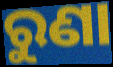
ରୁଣା